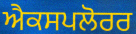
ਐਕਸਪਲੋਰਰ